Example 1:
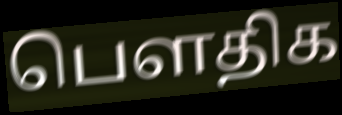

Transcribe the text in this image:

பௌதிக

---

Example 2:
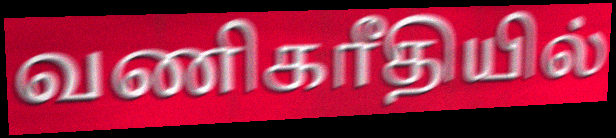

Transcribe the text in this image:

வணிகரீதியில்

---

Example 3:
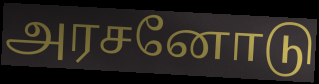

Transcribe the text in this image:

அரசனோடு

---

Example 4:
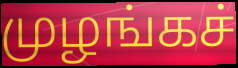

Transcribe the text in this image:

முழங்கச்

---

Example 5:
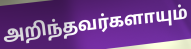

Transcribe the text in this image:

அறிந்தவர்களாயும்